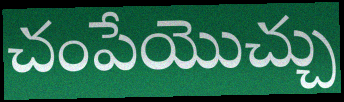
చంపేయొచ్చు